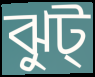
ঝুট্